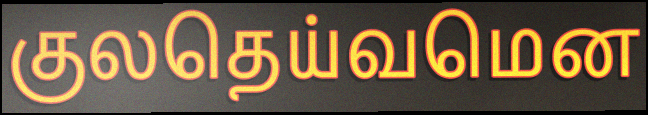
குலதெய்வமென